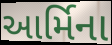
આર્મિના